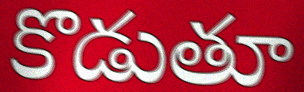
కొడుతూ